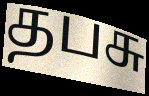
தபசு